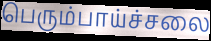
பெரும்பாய்ச்சலை